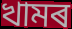
খামৰ